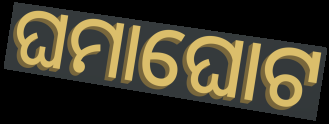
ଘମାଘୋଟ